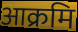
आक्रमि